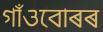
গাঁওবোৰৰ